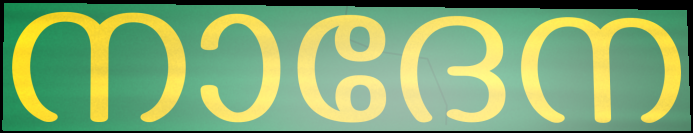
നാദേന